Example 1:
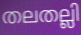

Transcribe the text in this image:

തലതല്ലി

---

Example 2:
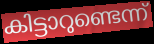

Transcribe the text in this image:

കിട്ടാറുണ്ടെന്ന്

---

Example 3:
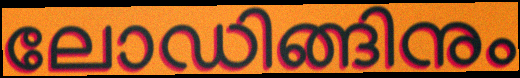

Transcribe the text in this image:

ലോഡിങ്ങിനും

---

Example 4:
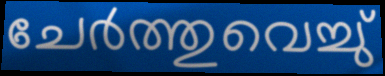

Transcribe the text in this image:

ചേർത്തുവെച്ചു്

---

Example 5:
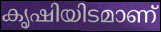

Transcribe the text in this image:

കൃഷിയിടമാണ്